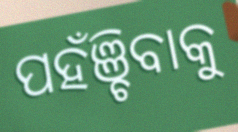
ପହଁଞ୍ଚିବାକୁ